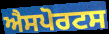
ਐਸਪੋਰਟਸ